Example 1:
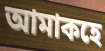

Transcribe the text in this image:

আমাকহে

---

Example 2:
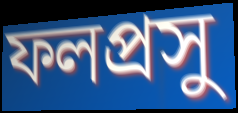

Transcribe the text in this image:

ফলপ্ৰসু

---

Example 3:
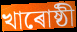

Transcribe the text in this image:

খাৰোষ্ঠী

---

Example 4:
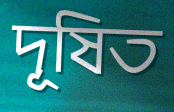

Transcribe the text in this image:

দূষিত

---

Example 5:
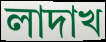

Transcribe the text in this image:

লাদাখ